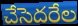
చేసెదరేల